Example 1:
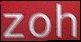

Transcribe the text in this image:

zoh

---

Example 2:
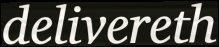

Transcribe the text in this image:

delivereth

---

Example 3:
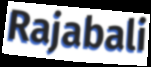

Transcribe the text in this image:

Rajabali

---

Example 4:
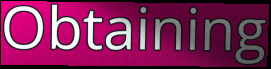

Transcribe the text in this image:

Obtaining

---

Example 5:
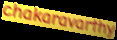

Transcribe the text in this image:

chakaravarthy